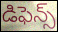
డిఫెన్స్